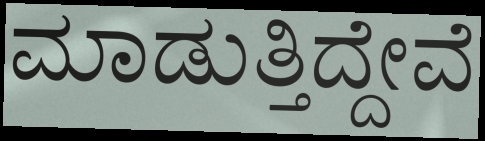
ಮಾಡುತ್ತಿದ್ದೇವೆ